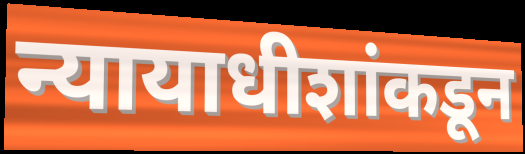
न्यायाधीशांकडून